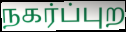
நகர்ப்புற